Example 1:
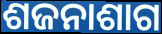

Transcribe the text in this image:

ଶଜନାଶାଗ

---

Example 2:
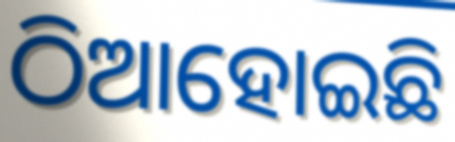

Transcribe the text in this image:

ଠିଆହୋଇଛି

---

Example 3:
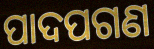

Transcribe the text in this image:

ପାଦପଗଣ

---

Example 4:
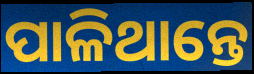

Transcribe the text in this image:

ପାଳିଥାନ୍ତେ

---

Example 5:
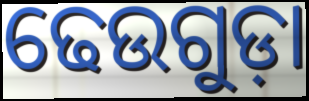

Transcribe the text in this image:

ଢେଉଗୁଡ଼ା